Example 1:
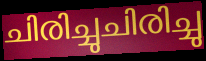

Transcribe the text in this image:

ചിരിച്ചുചിരിച്ചു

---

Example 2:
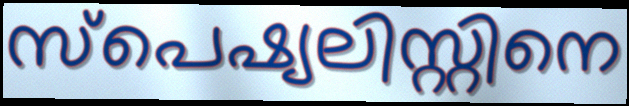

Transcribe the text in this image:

സ്പെഷ്യലിസ്റ്റിനെ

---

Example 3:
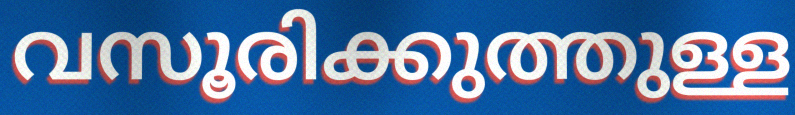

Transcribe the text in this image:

വസൂരിക്കുത്തുള്ള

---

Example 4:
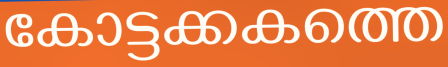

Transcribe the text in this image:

കോട്ടക്കകത്തെ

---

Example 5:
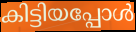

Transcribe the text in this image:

കിട്ടിയപ്പോൾ